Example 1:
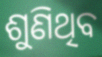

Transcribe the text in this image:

ଶୁଣିଥିବ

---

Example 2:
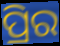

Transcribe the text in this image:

ପ୍ରିର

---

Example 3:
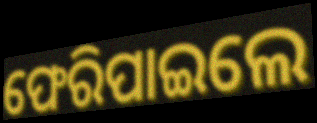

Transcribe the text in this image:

ଫେରିପାଇଲେ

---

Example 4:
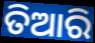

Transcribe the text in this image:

ତିଆରି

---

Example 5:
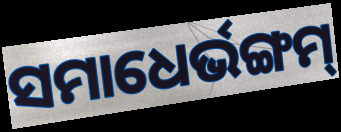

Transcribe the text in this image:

ସମାଧେର୍ଭଙ୍ଗମ୍